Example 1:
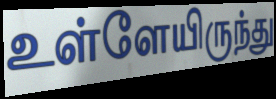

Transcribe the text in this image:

உள்ளேயிருந்து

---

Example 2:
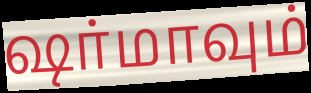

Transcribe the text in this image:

ஷர்மாவும்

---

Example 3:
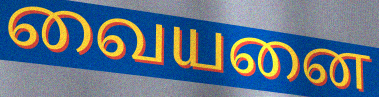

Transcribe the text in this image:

வையனை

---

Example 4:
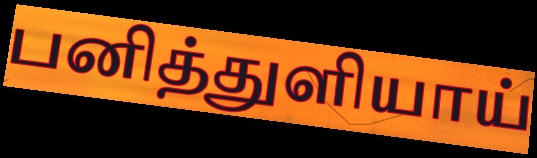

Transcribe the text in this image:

பனித்துளியாய்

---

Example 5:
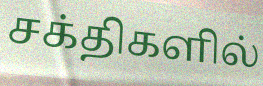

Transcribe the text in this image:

சக்திகளில்